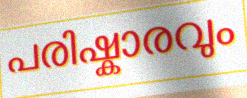
പരിഷ്കാരവും